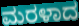
ಮರಳಾದ